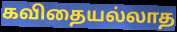
கவிதையல்லாத